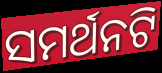
ସମର୍ଥନଟି